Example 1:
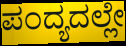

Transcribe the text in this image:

ಪಂದ್ಯದಲ್ಲೇ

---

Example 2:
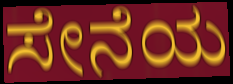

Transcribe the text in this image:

ಸೇನೆಯ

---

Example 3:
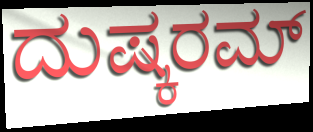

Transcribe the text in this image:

ದುಷ್ಕರಮ್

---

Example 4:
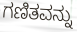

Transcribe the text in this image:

ಗಣಿತವನ್ನು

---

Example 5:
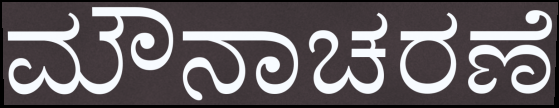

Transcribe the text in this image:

ಮೌನಾಚರಣೆ